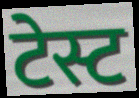
टेस्ट